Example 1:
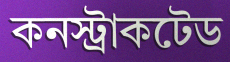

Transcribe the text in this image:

কনস্ট্রাকটেড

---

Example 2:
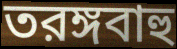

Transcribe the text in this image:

তরঙ্গবাহু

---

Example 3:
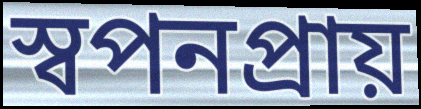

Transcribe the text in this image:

স্বপনপ্রায়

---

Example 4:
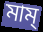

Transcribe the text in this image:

মাম্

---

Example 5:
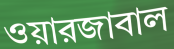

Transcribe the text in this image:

ওয়ারজাবাল